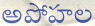
అపోహల